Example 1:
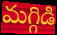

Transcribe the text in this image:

మగ్గిడి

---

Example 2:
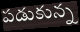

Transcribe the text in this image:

పడుకున్న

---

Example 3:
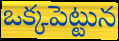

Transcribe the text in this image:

ఒక్కపెట్టున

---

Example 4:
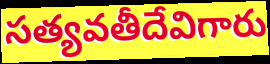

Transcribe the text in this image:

సత్యవతీదేవిగారు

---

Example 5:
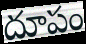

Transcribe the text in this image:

దూపం